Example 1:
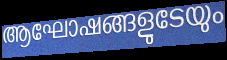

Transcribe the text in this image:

ആഘോഷങ്ങളുടേയും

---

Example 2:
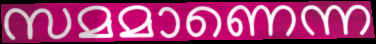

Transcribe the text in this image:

സമമാണെന്ന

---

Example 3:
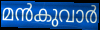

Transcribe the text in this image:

മൻകുവാർ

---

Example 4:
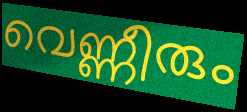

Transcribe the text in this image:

വെണ്ണീരും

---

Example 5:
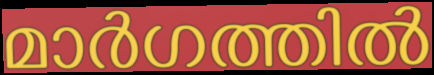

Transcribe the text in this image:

മാർഗത്തിൽ